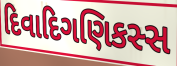
દિવાદિગણિકસ્સ